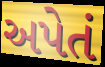
અપેતં